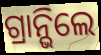
ଗ୍ରାନ୍ଭିଲେ